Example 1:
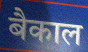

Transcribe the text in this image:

बैकाल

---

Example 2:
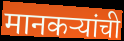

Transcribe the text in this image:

मानकऱ्यांची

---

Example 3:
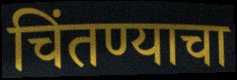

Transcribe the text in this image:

चिंतण्याचा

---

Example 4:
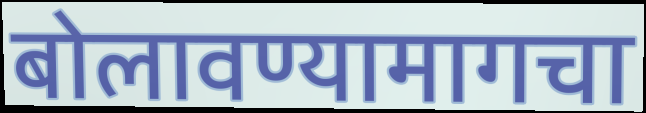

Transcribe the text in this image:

बोलावण्यामागचा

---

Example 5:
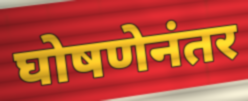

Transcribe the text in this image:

घोषणेनंतर